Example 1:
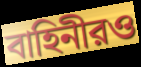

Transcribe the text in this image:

বাহিনীরও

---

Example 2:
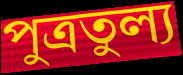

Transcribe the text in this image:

পুত্রতুল্য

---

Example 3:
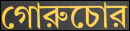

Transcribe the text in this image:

গোরুচোর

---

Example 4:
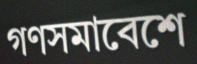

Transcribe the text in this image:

গণসমাবেশে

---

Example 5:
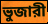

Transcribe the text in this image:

ভুজারী